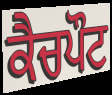
ਕੈਚਪੌਟ